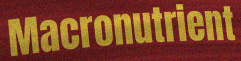
Macronutrient